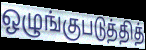
ஒழுங்குபடுத்தித்